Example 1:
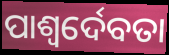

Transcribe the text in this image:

ପାଶ୍ୱର୍ଦେବତା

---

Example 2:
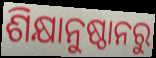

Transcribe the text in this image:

ଶିକ୍ଷାନୁଷ୍ଠାନରୁ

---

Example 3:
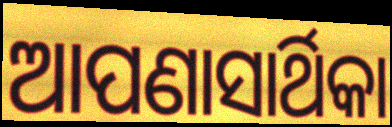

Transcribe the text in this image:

ଆପଣାସାର୍ଥିକା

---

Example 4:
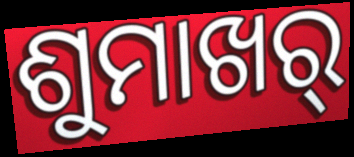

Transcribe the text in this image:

ଶୁମାଖର୍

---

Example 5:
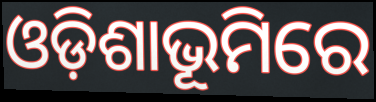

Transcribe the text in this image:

ଓଡ଼ିଶାଭୂମିରେ